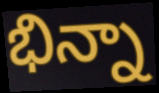
భిన్నా